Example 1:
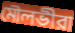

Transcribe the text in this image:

মৌলভীরা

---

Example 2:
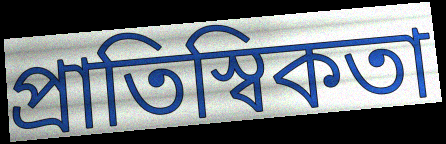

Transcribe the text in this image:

প্রাতিস্বিকতা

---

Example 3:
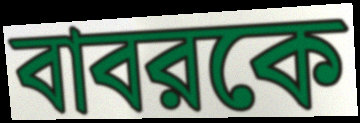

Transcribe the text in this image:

বাবরকে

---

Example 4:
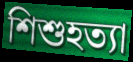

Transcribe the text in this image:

শিশুহত্যা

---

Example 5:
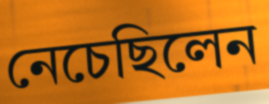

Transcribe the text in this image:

নেচেছিলেন